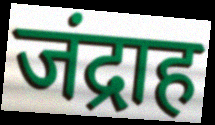
जंद्राह